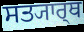
ਸਤ੍ਯਾਰ੍ਥ